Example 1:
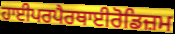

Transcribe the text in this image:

ਹਾਈਪਰਪੈਰਥਾਈਰੋਡਿਜ਼ਮ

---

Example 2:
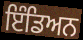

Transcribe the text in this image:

ਇੰਡਿਅਨ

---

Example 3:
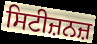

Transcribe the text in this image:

ਸਿਟੀਜ਼ਨਜ਼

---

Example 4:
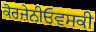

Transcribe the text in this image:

ਕੋਰਜ਼ੇਨੀਓਵਸਕੀ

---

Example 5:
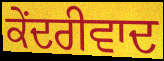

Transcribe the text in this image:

ਕੇਂਦਰੀਵਾਦ